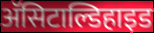
ॲसिटाल्डिहाइड